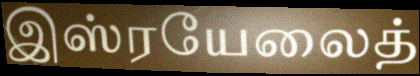
இஸ்ரயேலைத்